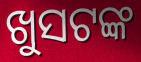
ଖୁସଟଙ୍କ